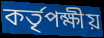
কর্তৃপক্ষীয়